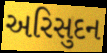
અરિસુદન